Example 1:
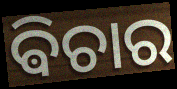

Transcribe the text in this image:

ଵିଚାର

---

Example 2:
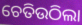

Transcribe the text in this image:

ଚେତିଉଠିଲା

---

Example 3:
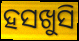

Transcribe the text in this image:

ହସଖୁସି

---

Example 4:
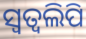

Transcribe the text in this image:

ସ୍ଵତ୍ଵଲିପି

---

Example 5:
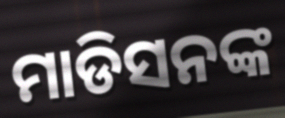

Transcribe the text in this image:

ମାଡିସନଙ୍କ